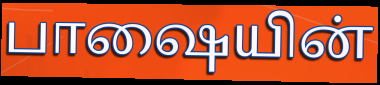
பாஷையின்